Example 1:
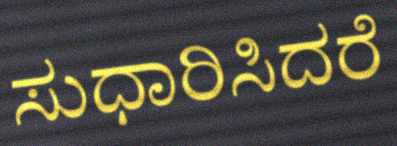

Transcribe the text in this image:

ಸುಧಾರಿಸಿದರೆ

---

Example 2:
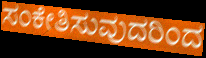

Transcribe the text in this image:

ಸಂಕೇತಿಸುವುದರಿಂದ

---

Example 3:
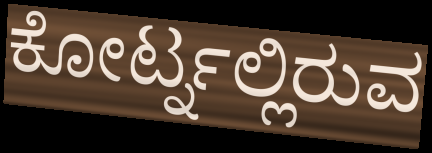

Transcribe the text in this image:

ಕೋರ್ಟ್ನಲ್ಲಿರುವ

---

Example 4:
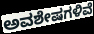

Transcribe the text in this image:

ಅವಶೇಷಗಳಿವೆ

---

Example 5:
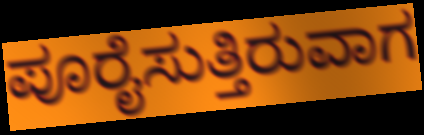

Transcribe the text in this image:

ಪೂರೈಸುತ್ತಿರುವಾಗ